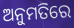
ଅନୁମତିରେ